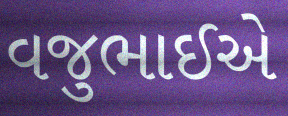
વજુભાઈએ